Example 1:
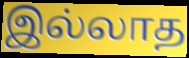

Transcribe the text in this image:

இல்லாத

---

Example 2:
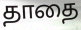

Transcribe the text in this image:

தாதை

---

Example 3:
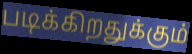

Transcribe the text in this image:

படிக்கிறதுக்கும்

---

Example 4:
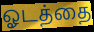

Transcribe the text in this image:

ஓடத்தை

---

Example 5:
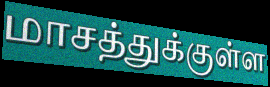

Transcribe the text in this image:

மாசத்துக்குள்ள